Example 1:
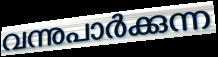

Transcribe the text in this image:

വന്നുപാർക്കുന്ന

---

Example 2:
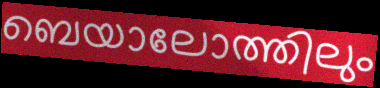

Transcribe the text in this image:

ബെയാലോത്തിലും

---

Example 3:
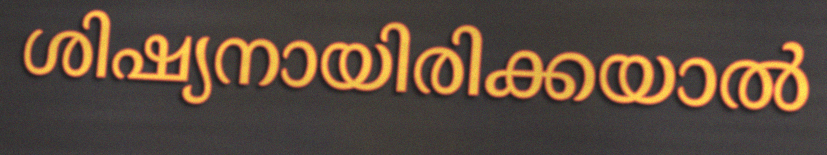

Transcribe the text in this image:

ശിഷ്യനായിരിക്കയാൽ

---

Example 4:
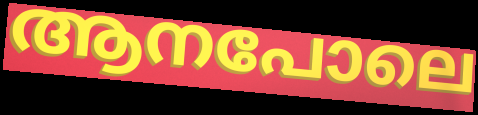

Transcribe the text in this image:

ആനപോലെ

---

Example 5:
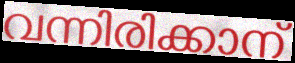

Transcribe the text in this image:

വന്നിരിക്കാന്